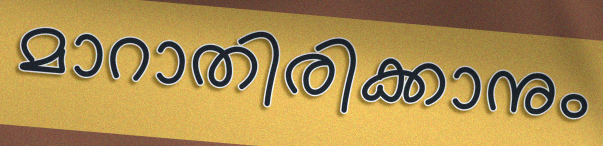
മാറാതിരിക്കാനും